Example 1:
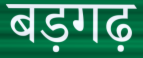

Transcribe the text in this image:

बड़गढ़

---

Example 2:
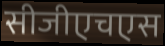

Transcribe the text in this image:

सीजीएचएस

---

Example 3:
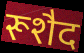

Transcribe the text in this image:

रूशैद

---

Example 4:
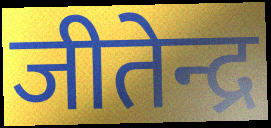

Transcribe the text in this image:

जीतेन्द्र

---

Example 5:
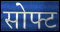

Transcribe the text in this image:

सोफ्ट